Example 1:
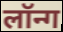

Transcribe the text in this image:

लॉन्ग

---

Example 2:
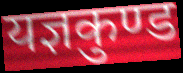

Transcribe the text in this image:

यज्ञकुण्ड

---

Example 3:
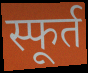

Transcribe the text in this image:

स्फूर्त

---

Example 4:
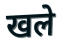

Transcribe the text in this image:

खले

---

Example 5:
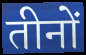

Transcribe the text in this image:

तीनों